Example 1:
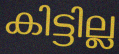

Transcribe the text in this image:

കിട്ടില്ല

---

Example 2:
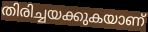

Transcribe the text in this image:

തിരിച്ചയക്കുകയാണ്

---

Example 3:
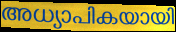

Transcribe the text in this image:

അധ്യാപികയായി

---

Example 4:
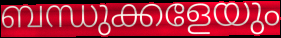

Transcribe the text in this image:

ബന്ധുക്കളേയും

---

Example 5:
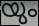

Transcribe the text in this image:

യും